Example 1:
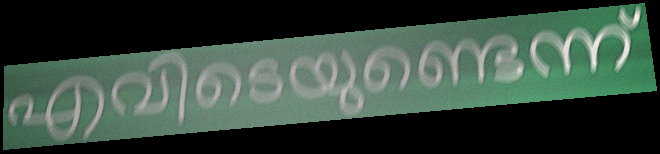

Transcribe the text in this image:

എവിടെയുണ്ടെന്ന്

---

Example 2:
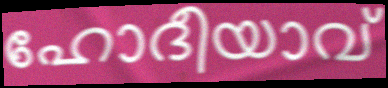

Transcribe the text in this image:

ഹോദീയാവ്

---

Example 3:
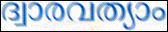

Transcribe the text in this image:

ദ്വാരവത്യാം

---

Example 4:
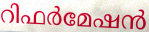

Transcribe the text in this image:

റിഫർമേഷൻ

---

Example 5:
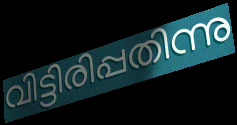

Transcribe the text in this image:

വിട്ടിരിപ്പതിന്നു